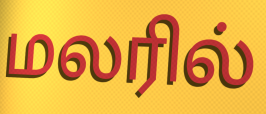
மலரில்